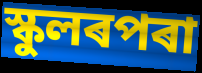
স্কুলৰপৰা